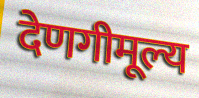
देणगीमूल्य